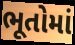
ભૂતોમાં